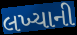
લખ્યાની